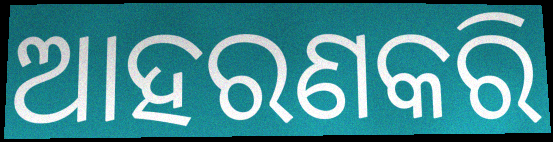
ଆହରଣକରି